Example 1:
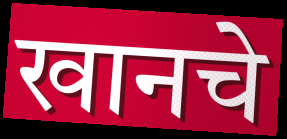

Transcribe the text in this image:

खानचे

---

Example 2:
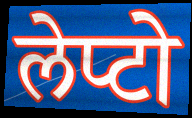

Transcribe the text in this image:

लेप्टो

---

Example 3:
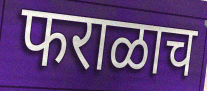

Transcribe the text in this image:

फराळाच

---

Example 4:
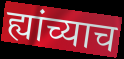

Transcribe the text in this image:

ह्यांच्याच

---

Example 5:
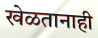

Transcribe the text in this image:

खेळतानाही